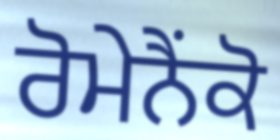
ਰੋਮੇਨੈਂਕੋ